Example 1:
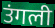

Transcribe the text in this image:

उंगली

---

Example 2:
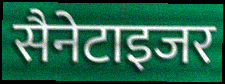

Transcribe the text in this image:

सैनेटाइजर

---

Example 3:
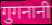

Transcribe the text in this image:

गुगनानी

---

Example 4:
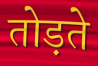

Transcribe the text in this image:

तोड़ते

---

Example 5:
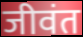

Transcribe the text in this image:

जीवंत